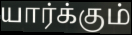
யார்க்கும்